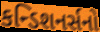
કન્ડિશનર્સનો